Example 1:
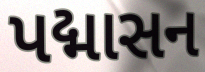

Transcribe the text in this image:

પદ્માસન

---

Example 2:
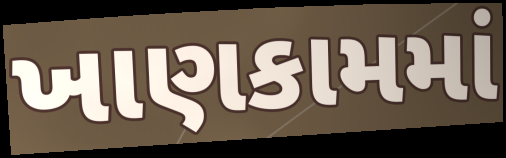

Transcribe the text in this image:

ખાણકામમાં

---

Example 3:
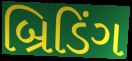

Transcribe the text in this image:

બ્રિડિંગ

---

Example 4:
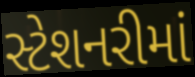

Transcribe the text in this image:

સ્ટેશનરીમાં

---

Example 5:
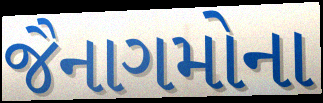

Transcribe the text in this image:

જૈનાગમોના